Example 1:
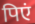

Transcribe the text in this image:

पिएं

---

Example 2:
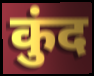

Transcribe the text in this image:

कुंद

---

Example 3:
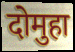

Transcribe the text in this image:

दोमुहा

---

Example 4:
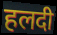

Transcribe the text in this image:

हलदी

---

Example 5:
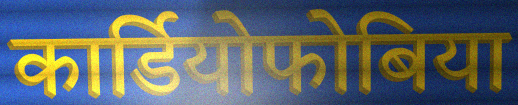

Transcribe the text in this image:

कार्डियोफोबिया